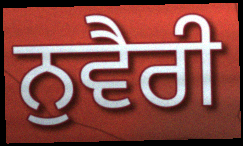
ਨੁਵੈਰੀ